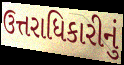
ઉત્તરાધિકારીનું